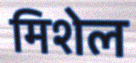
मिशेल